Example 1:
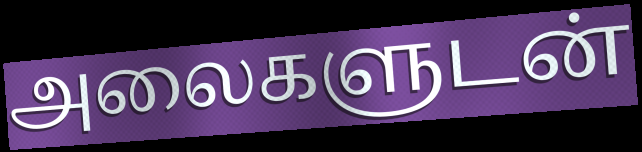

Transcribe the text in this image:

அலைகளுடன்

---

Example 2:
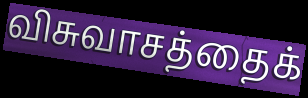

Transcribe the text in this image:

விசுவாசத்தைக்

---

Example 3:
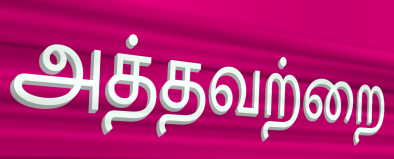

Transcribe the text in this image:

அத்தவற்றை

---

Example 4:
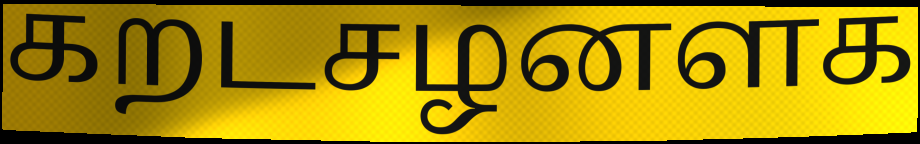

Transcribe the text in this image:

கறடசழனளக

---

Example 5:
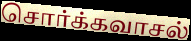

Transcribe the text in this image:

சொர்க்கவாசல்